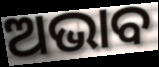
ଅଭାବ